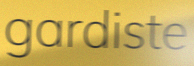
gardiste